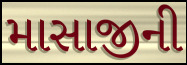
માસાજીની